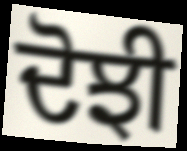
ਦੋਝੀ